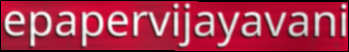
epapervijayavani